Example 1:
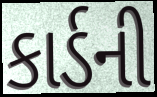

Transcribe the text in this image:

કાર્ડની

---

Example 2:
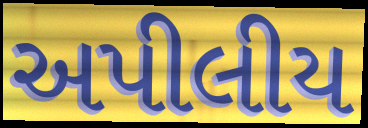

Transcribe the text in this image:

અપીલીય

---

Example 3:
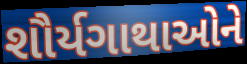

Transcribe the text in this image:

શૌર્યગાથાઓને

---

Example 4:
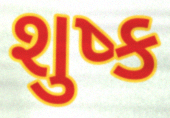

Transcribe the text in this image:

શુષ્ક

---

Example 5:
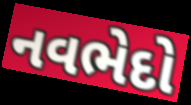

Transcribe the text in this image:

નવભેદો